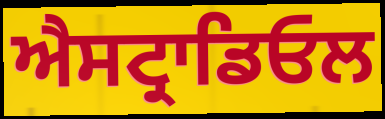
ਐਸਟ੍ਰਾਡਿਓਲ